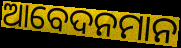
ଆବେଦନମାନ